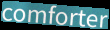
comforter